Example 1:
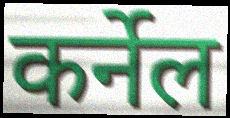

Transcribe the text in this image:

कर्नेल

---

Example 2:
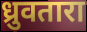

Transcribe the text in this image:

ध्रुवतारा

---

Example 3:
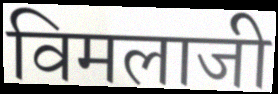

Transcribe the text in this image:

विमलाजी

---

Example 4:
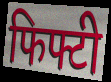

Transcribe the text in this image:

फिफ्टी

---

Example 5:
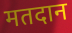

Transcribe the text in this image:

मतदान